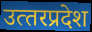
उत्‍तरप्रदेश